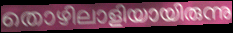
തൊഴിലാളിയായിരുന്നു